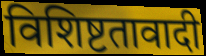
विशिष्टतावादी